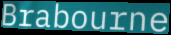
Brabourne